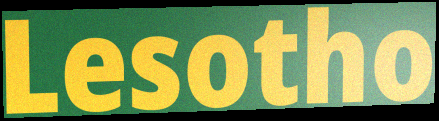
Lesotho